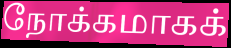
நோக்கமாகக்